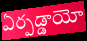
ఏర్పడ్డాయో